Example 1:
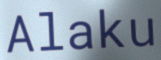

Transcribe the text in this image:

Alaku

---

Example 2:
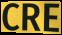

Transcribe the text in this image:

CRE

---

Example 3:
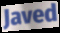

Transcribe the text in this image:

Javed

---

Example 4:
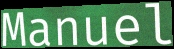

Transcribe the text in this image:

Manuel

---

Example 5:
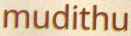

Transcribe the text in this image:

mudithu